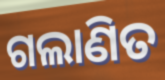
ଗଲାଣିତ